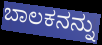
ಬಾಲಕನನ್ನು